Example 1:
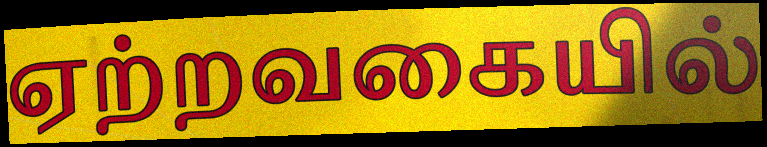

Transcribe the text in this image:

ஏற்றவகையில்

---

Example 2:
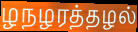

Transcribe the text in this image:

ழநழரத்தழல்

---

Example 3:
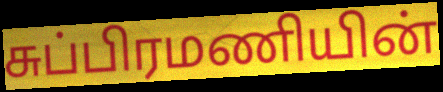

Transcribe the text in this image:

சுப்பிரமணியின்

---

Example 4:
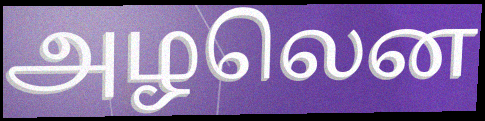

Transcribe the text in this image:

அழலென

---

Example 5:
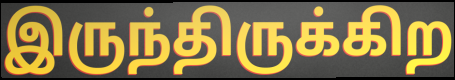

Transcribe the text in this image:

இருந்திருக்கிற